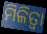
ମିଳିତ୍ଵା